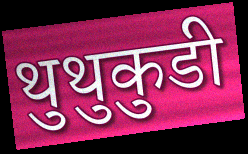
थुथुकुडी